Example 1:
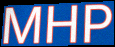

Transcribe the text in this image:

MHP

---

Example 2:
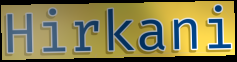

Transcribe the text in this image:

Hirkani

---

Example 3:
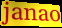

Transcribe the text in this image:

janao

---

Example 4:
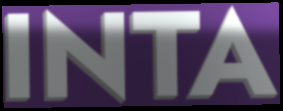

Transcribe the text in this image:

INTA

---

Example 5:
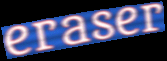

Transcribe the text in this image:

eraser